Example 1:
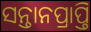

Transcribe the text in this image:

ସନ୍ତାନପ୍ରାପ୍ତି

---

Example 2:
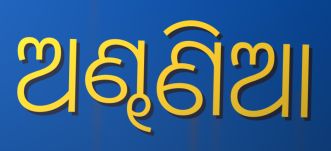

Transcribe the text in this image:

ଅଣ୍ଢଣିଆ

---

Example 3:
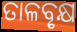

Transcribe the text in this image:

ତାଳବୃକ୍ଷ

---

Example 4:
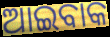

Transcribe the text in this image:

ଆଇବାକ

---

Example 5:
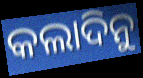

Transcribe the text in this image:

କଲାଦିନୁ